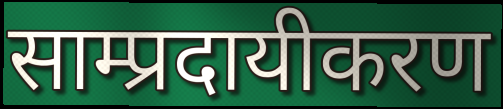
साम्प्रदायीकरण